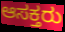
ಆಸಕ್ತರು